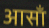
आसाँ